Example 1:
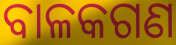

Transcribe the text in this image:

ବାଳକଗଣ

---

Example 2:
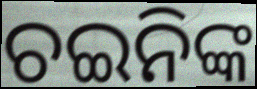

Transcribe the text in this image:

ଚଇନିଙ୍କ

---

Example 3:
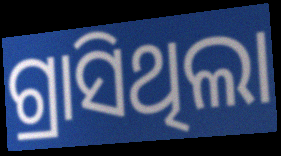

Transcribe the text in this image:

ଗ୍ରାସିଥିଲା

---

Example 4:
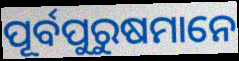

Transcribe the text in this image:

ପୂର୍ବପୁରୁଷମାନେ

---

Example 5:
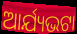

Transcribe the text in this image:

ଆର୍ଯ୍ୟଭଟା